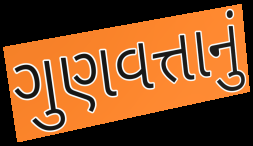
ગુણવત્તાનું